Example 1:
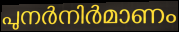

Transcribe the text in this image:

പുനർനിർമാണം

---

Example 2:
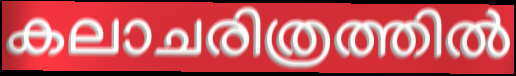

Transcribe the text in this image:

കലാചരിത്രത്തിൽ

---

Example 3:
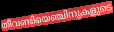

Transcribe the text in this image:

തീവണ്ടിയെഞ്ചിനുകളുടെ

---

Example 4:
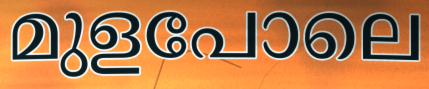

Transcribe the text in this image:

മുളപോലെ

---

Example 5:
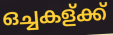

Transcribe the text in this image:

ഒച്ചകള്ക്ക്